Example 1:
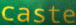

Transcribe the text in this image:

caste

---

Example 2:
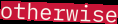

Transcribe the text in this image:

otherwise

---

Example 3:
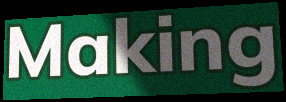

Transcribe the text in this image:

Making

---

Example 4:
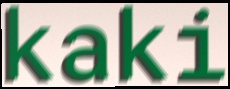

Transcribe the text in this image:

kaki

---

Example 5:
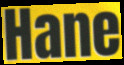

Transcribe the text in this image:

Hane